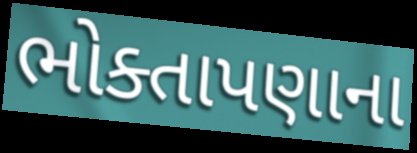
ભોક્તાપણાના